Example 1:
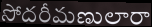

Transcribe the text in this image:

సోదరీమణులారా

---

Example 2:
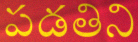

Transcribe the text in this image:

పడతిని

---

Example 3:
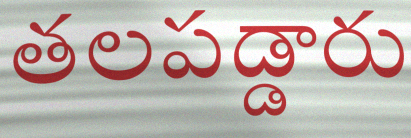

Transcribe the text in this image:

తలపడ్డారు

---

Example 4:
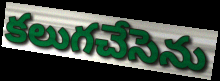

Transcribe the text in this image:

కలుగచేసెను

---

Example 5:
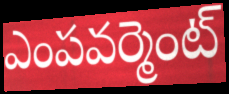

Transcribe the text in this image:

ఎంపవర్మెంట్